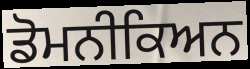
ਡੋਮਨੀਕਿਅਨ